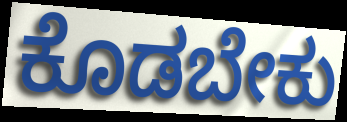
ಕೊಡಬೇಕು